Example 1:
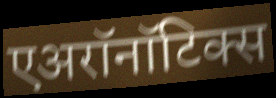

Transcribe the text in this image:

एअरॉनॉटिक्स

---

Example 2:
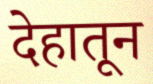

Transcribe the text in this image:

देहातून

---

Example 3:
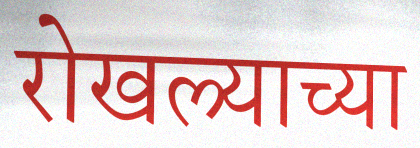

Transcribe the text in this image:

रोखल्याच्या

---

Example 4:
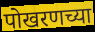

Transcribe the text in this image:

पोखरणच्या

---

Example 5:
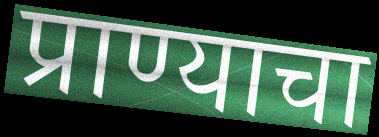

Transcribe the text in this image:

प्राण्याचा